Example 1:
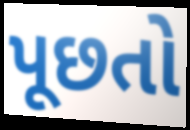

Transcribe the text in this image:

પૂછતો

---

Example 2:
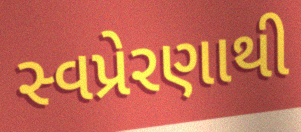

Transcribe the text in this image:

સ્વપ્રેરણાથી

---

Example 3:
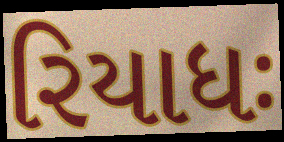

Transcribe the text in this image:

રિયાધઃ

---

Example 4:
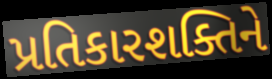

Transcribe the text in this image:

પ્રતિકારશક્તિને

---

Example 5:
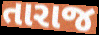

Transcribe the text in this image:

તારાજ